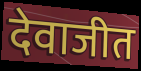
देवाजीत